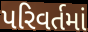
પરિવર્તમાં